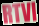
RTVI